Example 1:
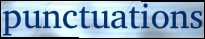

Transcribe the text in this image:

punctuations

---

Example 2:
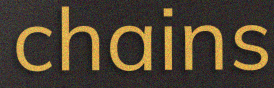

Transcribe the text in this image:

chains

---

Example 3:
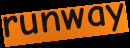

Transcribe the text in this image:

runway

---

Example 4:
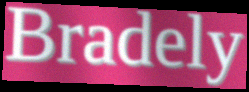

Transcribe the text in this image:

Bradely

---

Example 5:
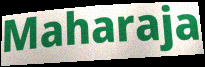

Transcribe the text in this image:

Maharaja